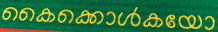
കൈക്കൊൾകയോ